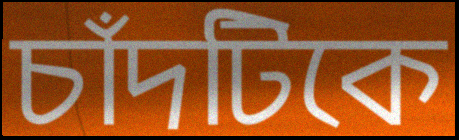
চাঁদটিকে